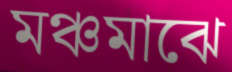
মঞ্চমাঝে